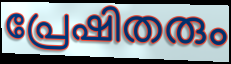
പ്രേഷിതരും